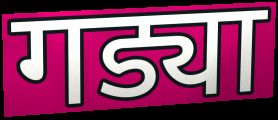
गड्या